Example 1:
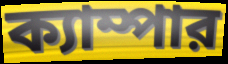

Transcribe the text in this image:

ক্যাম্পার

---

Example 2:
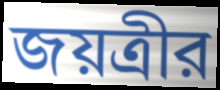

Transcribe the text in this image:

জয়ত্রীর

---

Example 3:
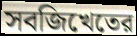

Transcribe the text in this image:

সবজিখেতের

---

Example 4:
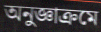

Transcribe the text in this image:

অনুজ্ঞাক্রমে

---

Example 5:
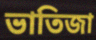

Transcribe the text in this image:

ভাতিজা